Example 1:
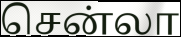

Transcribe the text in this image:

சென்லா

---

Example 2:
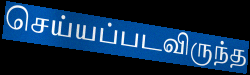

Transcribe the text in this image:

செய்யப்படவிருந்த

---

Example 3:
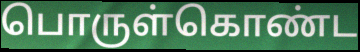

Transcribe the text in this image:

பொருள்கொண்ட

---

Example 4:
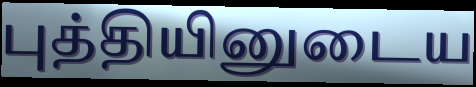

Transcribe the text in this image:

புத்தியினுடைய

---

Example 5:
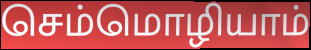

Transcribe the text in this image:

செம்மொழியாம்